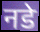
नडे